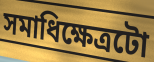
সমাধিক্ষেত্ৰটো